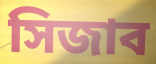
সিজাব